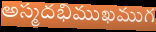
అస్మదభిముఖముగ